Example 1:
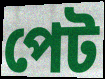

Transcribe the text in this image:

পেট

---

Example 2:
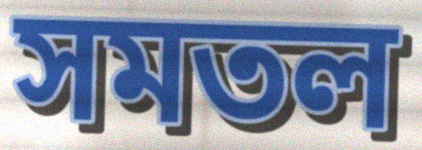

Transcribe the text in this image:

সমতল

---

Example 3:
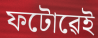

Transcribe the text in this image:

ফটোৱেই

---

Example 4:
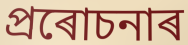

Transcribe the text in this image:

প্ৰৰোচনাৰ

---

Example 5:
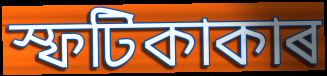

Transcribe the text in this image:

স্ফটিকাকাৰ